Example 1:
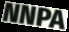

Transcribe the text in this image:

NNPA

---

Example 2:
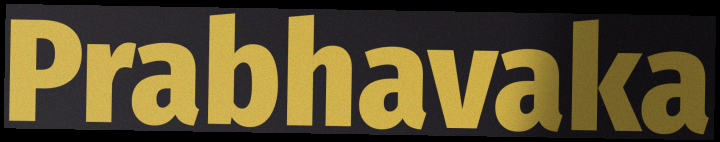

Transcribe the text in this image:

Prabhavaka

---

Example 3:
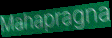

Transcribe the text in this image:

Mahapragna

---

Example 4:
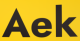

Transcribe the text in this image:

Aek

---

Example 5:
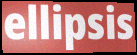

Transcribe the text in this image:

ellipsis